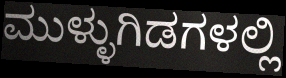
ಮುಳ್ಳುಗಿಡಗಳಲ್ಲಿ